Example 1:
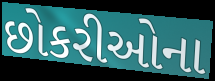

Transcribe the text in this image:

છોકરીઓના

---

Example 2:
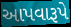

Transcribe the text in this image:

આપવારૂપે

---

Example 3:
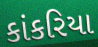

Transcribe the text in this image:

કાંકરિયા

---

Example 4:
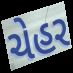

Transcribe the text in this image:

ચેહર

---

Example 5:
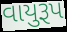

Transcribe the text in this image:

વાયુરૂપ